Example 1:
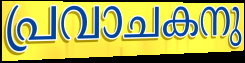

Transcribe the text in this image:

പ്രവാചകനു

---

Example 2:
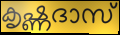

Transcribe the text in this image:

കൃഷ്ണദാസ്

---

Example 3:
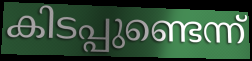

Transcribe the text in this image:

കിടപ്പുണ്ടെന്ന്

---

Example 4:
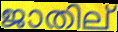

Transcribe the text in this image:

ജാതില്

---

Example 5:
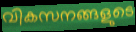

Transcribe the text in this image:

വികസനങ്ങളുടെ